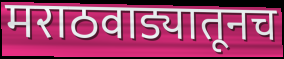
मराठवाड्यातूनच